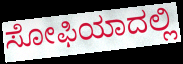
ಸೋಫಿಯಾದಲ್ಲಿ